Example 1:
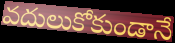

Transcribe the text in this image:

వదులుకోకుండానే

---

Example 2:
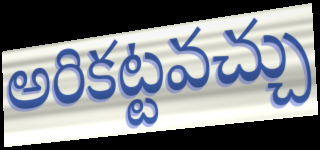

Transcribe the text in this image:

అరికట్టవచ్చు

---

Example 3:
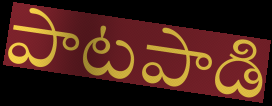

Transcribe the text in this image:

పాటపాడి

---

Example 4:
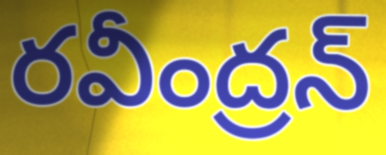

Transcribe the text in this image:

రవీంద్రన్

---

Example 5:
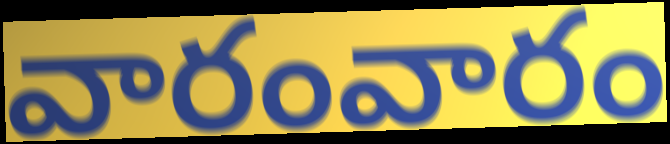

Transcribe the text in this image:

వారంవారం